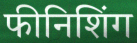
फीनिशिंग